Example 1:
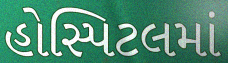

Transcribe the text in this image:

હોસ્પિટલમાં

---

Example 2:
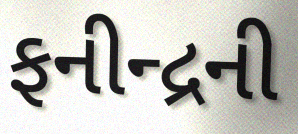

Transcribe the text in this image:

ફનીન્દ્રની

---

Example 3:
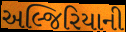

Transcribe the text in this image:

અલ્જિરિયાની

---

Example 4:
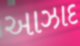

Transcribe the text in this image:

આઝાદ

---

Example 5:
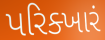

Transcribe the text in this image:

પરિક્ખારં